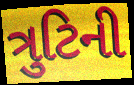
ત્રુટિની